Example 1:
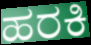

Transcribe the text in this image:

ಹರಕಿ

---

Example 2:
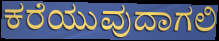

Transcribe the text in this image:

ಕರೆಯುವುದಾಗಲಿ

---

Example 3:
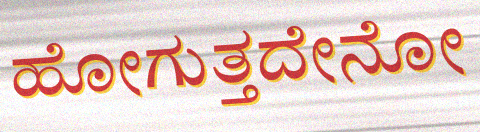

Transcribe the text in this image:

ಹೋಗುತ್ತದೇನೋ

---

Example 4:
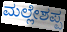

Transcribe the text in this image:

ಮಲ್ಲೇಶಪ್ಪ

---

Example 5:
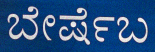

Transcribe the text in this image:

ಬೇರ್ಷೆಬ